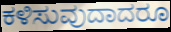
ಕಳಿಸುವುದಾದರೂ